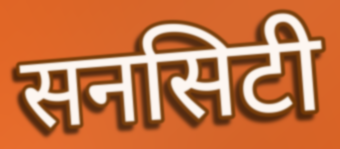
सनसिटी